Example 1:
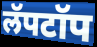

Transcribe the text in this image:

लॅपटॉप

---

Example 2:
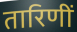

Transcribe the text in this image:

तारिणीं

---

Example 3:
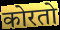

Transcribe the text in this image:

कोरतो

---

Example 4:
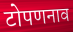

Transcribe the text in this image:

टोपणनाव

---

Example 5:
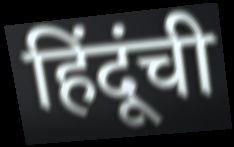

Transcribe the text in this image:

हिंदूंची